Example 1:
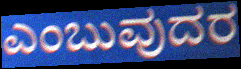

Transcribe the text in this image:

ಎಂಬುವುದರ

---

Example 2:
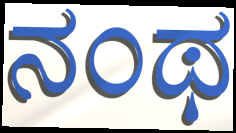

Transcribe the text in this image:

ನಂಥ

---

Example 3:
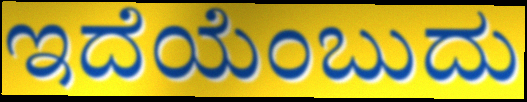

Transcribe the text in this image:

ಇದೆಯೆಂಬುದು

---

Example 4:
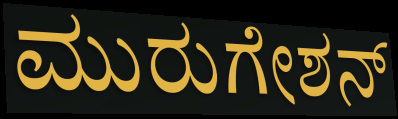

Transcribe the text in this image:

ಮುರುಗೇಶನ್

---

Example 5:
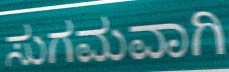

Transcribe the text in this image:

ಸುಗಮವಾಗಿ